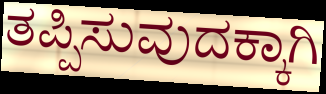
ತಪ್ಪಿಸುವುದಕ್ಕಾಗಿ